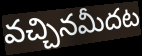
వచ్చినమీదట